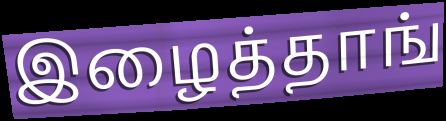
இழைத்தாங்